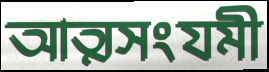
আত্মসংযমী